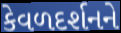
કેવળદર્શનને